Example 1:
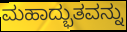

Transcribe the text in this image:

ಮಹಾದ್ಭುತವನ್ನು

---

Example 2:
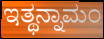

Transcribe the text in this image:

ಇತ್ಥನ್ನಾಮಂ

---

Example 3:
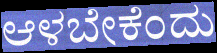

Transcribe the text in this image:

ಆಳಬೇಕೆಂದು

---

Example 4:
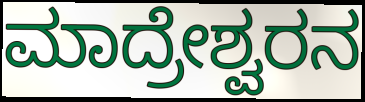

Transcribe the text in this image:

ಮಾದ್ರೇಶ್ವರನ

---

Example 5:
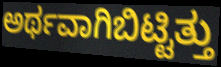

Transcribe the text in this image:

ಅರ್ಥವಾಗಿಬಿಟ್ಟಿತ್ತು